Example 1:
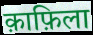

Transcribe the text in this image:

क़ाफ़िला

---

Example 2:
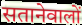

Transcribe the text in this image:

सतानेवालों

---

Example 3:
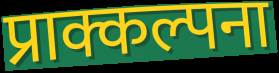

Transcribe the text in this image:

प्राक्कल्पना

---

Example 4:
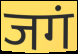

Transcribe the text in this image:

जगं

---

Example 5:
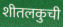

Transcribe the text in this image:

शीतलकुची